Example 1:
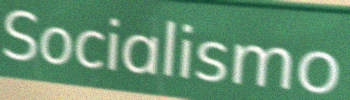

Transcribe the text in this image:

Socialismo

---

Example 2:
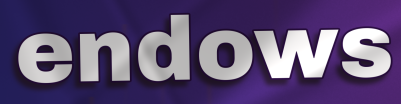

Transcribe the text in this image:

endows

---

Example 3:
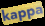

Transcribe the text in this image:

kappa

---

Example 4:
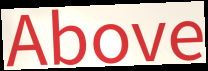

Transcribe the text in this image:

Above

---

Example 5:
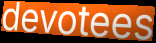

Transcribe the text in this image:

devotees